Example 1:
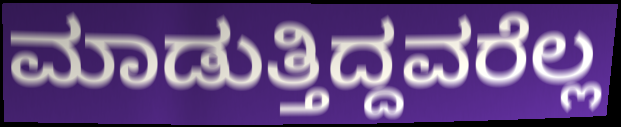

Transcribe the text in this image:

ಮಾಡುತ್ತಿದ್ದವರೆಲ್ಲ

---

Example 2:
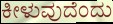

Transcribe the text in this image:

ಕೀಳುವುದೆಂದು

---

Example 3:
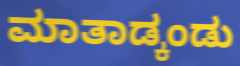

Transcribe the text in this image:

ಮಾತಾಡ್ಕಂಡು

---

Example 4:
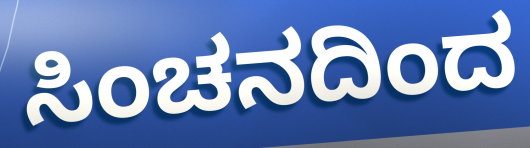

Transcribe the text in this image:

ಸಿಂಚನದಿಂದ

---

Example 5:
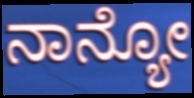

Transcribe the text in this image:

ನಾನ್ಯೋ